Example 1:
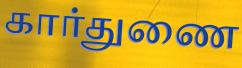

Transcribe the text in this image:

கார்துணை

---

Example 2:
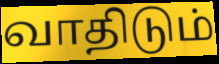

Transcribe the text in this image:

வாதிடும்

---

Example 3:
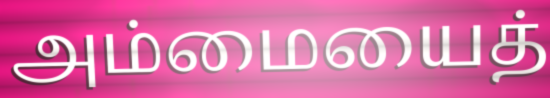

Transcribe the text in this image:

அம்மையைத்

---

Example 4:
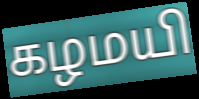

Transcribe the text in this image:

கழமயி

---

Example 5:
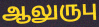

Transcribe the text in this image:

ஆலுருபு